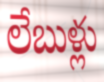
లేబుళ్లు